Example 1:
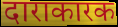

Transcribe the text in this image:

दाराकारक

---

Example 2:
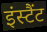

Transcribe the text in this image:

इंस्टैंट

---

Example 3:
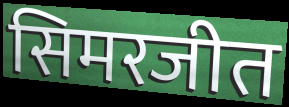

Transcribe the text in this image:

सिमरजीत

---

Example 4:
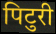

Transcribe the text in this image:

पिटुरी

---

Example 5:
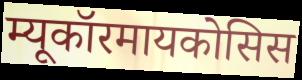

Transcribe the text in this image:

म्यूकॉरमायकोसिस